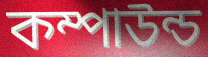
কম্পাউন্ড